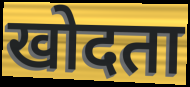
खोदता